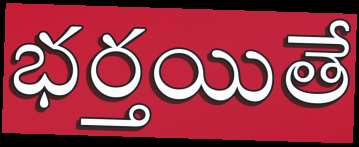
భర్తయితే